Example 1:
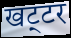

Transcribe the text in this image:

खट्‌टर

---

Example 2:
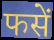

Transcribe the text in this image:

फसें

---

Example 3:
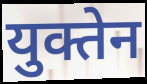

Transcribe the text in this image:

युक्तेन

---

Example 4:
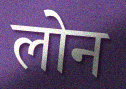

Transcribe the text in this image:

लोन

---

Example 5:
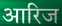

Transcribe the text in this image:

आरिज